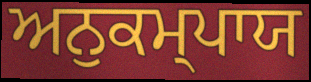
ਅਨੁਕਮ੍ਪਾਯ